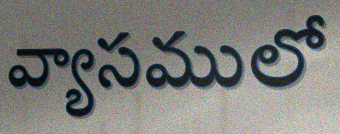
వ్యాసములో